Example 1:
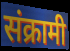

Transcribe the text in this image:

संक्रामी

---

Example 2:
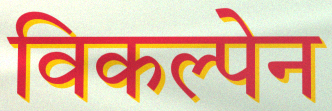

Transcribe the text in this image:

विकल्पेन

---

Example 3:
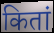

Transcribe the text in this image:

कितां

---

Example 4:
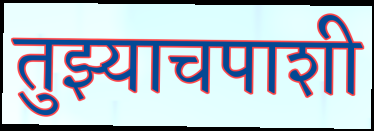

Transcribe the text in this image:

तुझ्याचपाशी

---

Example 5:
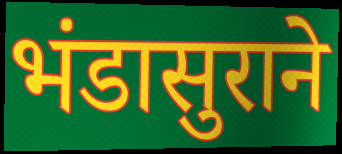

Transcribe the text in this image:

भंडासुराने